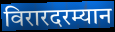
विरारदरम्यान